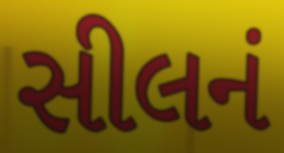
સીલનં